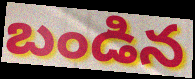
బండిన